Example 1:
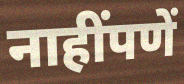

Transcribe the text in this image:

नाहींपणें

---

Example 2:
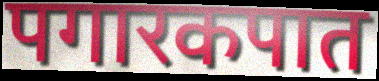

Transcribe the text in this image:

पगारकपात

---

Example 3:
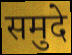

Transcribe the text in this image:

समुदे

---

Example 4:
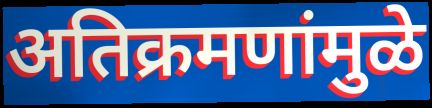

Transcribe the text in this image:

अतिक्रमणांमुळे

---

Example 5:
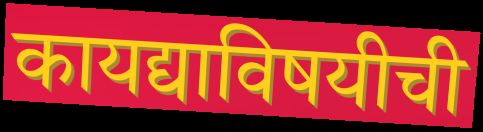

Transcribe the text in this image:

कायद्याविषयीची